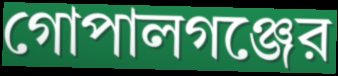
গোপালগঞ্জের